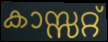
കാസ്സറ്റ്